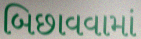
બિછાવવામાં